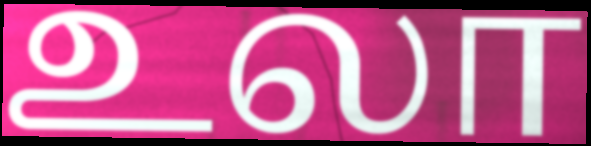
உலா